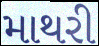
માથરી